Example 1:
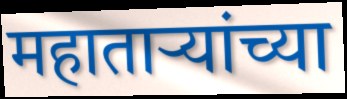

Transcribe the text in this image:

महाताऱ्यांच्या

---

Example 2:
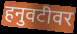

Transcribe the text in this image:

हनुवटीवर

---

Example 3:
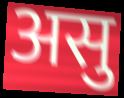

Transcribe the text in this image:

असु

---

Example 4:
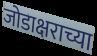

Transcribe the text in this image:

जोडाक्षराच्या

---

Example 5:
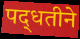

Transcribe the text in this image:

पद्‍धतीने